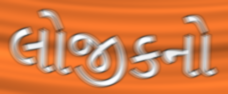
લોજીકનો